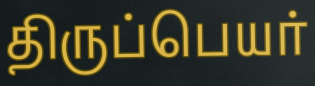
திருப்பெயர்